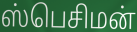
ஸ்பெசிமன்